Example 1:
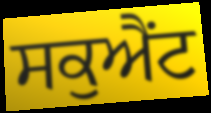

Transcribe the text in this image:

ਸਕੁਐਂਟ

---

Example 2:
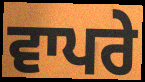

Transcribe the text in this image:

ਵਾਪਰੇ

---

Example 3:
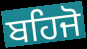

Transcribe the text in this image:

ਬਹਿਜੋ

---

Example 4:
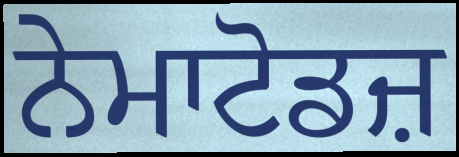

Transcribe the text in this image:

ਨੇਮਾਟੋਡਜ਼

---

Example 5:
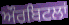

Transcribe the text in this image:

ਔਰਬਿਟਲਾਂ